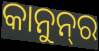
କାନୁନ୍‌ର